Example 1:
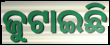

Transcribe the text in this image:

ଜୁଟାଇଛି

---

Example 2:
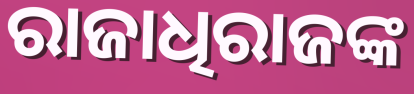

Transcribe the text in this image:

ରାଜାଧିରାଜଙ୍କ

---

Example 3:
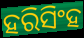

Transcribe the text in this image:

ହରିସିଂହ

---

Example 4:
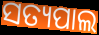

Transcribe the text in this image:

ସତ୍ୟପାଲ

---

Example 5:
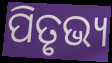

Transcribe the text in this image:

ପିତୃଭ୍ୟ